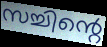
സച്ചിന്റെ